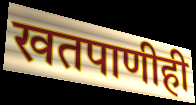
खतपाणीही